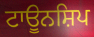
ਟਾਊਨਸ਼ਿਪ